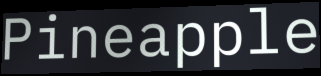
Pineapple